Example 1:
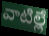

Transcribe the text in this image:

వాటిల్లే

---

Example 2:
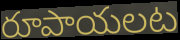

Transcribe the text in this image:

రూపాయలట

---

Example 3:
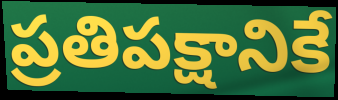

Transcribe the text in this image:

ప్రతిపక్షానికే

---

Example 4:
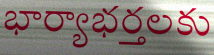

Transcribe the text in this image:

భార్యాభర్తలకు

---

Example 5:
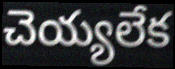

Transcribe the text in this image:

చెయ్యలేక